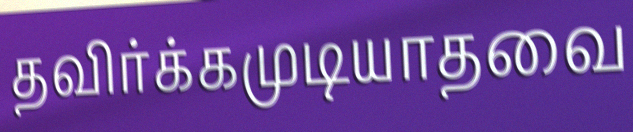
தவிர்க்கமுடியாதவை